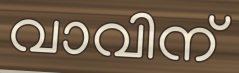
വാവിന്